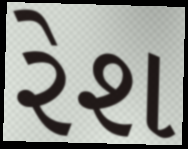
રેશ